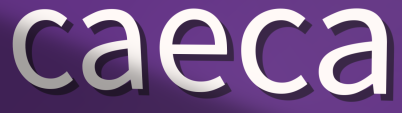
caeca